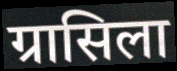
ग्रासिला